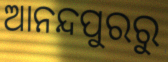
ଆନନ୍ଦପୁରରୁ